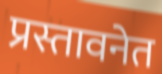
प्रस्तावनेत